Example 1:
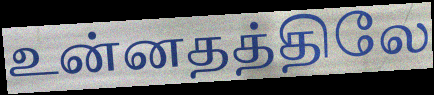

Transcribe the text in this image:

உன்னதத்திலே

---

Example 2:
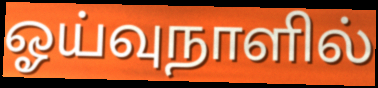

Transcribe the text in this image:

ஓய்வுநாளில்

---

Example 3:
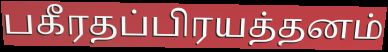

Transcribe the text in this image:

பகீரதப்பிரயத்தனம்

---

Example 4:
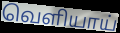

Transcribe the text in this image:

வெளியாய்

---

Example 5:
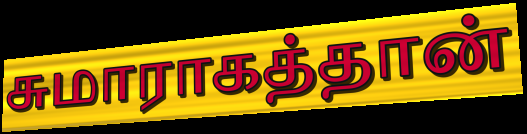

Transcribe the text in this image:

சுமாராகத்தான்